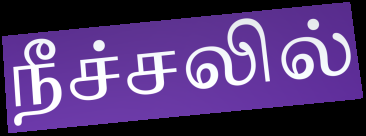
நீச்சலில்